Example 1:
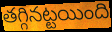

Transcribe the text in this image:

తగ్గినట్టయింది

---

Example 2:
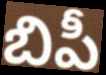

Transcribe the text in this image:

బిపీ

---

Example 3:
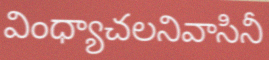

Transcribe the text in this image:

వింధ్యాచలనివాసినీ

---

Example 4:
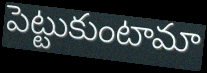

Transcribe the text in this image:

పెట్టుకుంటామా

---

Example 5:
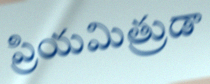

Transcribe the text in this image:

ప్రియమిత్రుడా